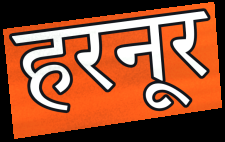
हरनूर